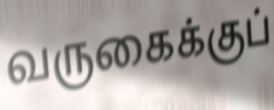
வருகைக்குப்